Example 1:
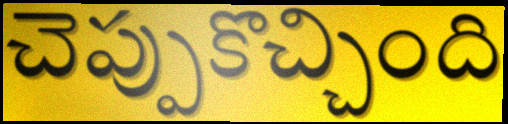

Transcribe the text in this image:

చెప్పుకొచ్చింది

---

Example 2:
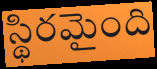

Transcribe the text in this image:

స్థిరమైంది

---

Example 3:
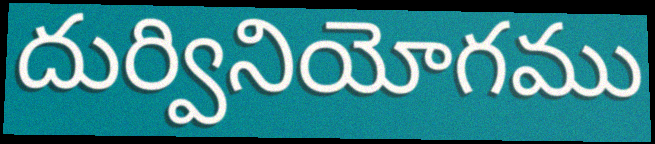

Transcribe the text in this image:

దుర్వినియోగము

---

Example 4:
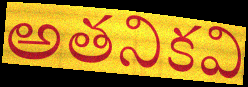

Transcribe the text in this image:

అతనికవి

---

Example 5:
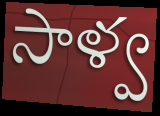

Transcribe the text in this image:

సాళ్వ